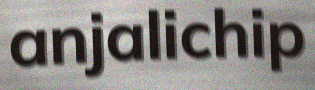
anjalichip